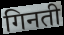
गिनती